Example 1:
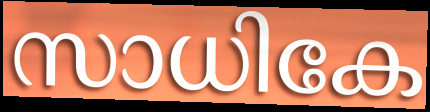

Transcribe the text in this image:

സാധികേ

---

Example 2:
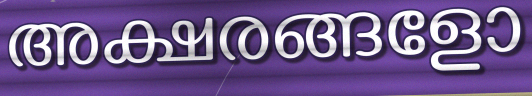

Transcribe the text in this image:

അക്ഷരങ്ങളോ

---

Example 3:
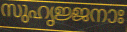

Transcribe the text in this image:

സുഹൃജ്ജനാഃ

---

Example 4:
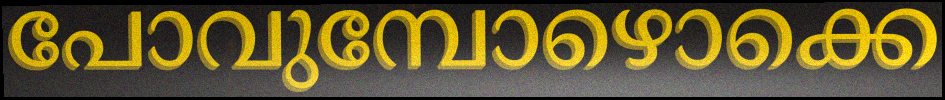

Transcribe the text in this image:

പോവുമ്പോഴൊക്കെ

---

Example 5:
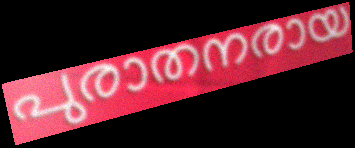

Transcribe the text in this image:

പുരാതനരായ